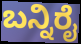
ಬನ್ನಿರೈ